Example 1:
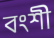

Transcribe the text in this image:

বংশী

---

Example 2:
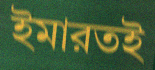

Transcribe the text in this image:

ইমারতই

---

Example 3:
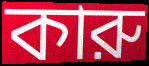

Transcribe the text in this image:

কারু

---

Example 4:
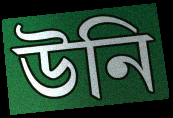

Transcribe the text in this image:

উনি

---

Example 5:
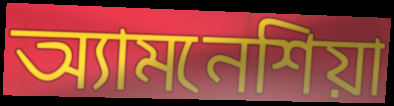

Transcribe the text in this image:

অ্যামনেশিয়া